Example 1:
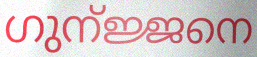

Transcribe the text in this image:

ഗുന്ജ്ജനെ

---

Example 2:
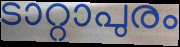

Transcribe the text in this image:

ടാറ്റാപുരം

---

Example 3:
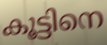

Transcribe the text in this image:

കൂട്ടിനെ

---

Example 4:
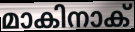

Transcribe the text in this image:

മാകിനാക്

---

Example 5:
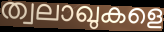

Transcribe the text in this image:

ത്വലാഖുകളെ